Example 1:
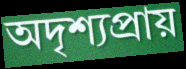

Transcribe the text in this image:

অদৃশ্যপ্ৰায়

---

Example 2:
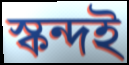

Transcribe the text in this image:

স্কন্দই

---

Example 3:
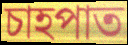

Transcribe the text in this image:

চাহপাত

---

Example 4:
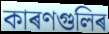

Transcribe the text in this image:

কাৰণগুলিৰ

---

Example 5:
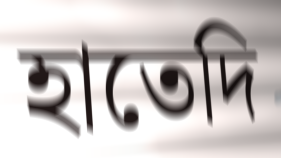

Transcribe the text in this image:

হাতেদি